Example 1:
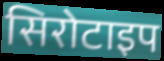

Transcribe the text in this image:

सिरोटाइप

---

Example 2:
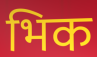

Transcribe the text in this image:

भिक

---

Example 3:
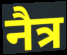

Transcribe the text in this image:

नैत्र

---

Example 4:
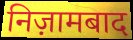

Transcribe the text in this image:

निज़ामबाद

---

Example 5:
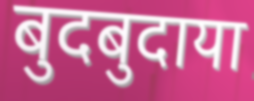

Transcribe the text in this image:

बुदबुदाया